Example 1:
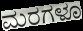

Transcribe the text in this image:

ಮರಗಳೂ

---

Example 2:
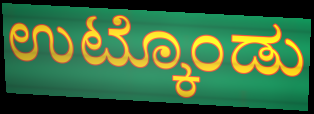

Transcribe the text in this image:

ಉಟ್ಕೊಂಡು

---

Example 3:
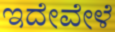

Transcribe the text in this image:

ಇದೇವೇಳೆ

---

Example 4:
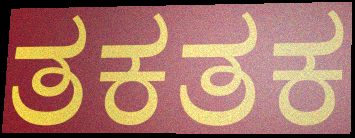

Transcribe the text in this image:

ತಕತಕ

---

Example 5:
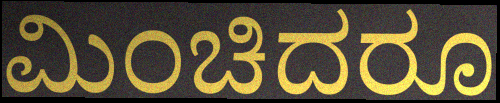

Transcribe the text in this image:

ಮಿಂಚಿದರೂ